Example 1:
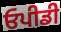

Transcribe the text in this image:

ਓਪੀਡੀ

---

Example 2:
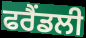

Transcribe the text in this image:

ਫਰੈਂਡਲੀ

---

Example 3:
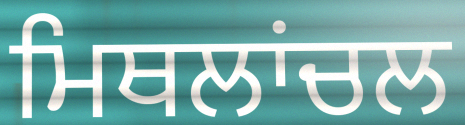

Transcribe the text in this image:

ਮਿਥਲਾਂਚਲ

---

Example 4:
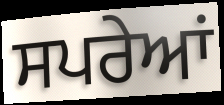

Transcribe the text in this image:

ਸਪਰੇਆਂ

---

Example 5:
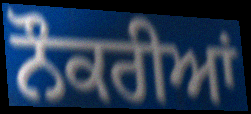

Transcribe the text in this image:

ਨੌਕਰੀਆਂ